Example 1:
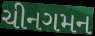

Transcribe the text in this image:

ચીનગમન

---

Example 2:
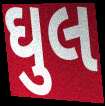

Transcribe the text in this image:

ઘુલ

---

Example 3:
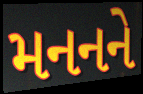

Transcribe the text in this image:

મનનને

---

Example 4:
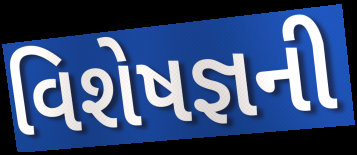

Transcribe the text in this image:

વિશેષજ્ઞની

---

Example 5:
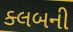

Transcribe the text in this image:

ક્લબની